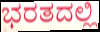
ಭರತದಲ್ಲಿ